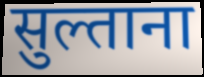
सुल्ताना